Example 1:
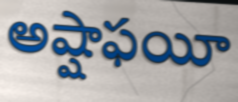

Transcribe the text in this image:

అష్షాఫయీ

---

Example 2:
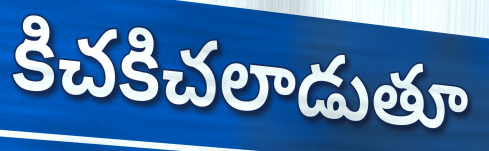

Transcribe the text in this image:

కిచకిచలాడుతూ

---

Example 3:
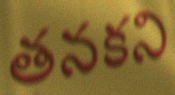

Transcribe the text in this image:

తనకని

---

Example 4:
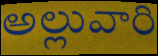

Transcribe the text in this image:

అల్లువారి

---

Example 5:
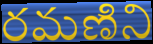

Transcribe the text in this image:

రమణిని